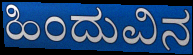
ಹಿಂದುವಿನ